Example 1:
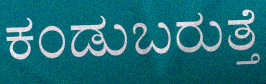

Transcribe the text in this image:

ಕಂಡುಬರುತ್ತೆ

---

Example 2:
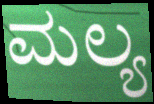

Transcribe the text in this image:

ಮಲ್ಯ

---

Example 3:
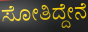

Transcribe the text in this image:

ಸೋತಿದ್ದೇನೆ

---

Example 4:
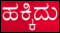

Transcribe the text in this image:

ಹಕ್ಕಿದು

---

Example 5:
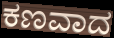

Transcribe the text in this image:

ಕಣವಾದ